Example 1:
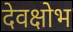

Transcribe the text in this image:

देवक्षोभ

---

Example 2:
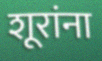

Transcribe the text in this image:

शूरांना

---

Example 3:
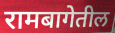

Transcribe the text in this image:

रामबागेतील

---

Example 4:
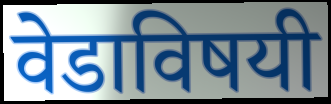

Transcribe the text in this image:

वेडाविषयी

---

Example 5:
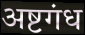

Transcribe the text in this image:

अष्टगंध